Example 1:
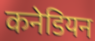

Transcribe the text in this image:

कनेडियन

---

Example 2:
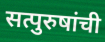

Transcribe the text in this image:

सत्पुरुषांची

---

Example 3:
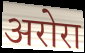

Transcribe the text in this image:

अरोरा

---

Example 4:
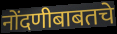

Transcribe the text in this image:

नोंदणीबाबतचे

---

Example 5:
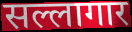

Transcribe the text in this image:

सल्लागार